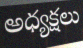
అధ్యక్షలు